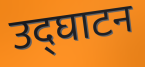
उद्घाटन